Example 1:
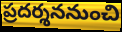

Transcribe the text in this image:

ప్రదర్శననుంచి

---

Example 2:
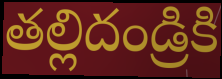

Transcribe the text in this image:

తల్లిదండ్రికి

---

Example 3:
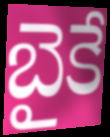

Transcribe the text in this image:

బైకే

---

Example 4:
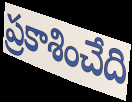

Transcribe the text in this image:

ప్రకాశించేది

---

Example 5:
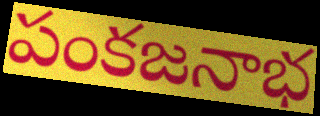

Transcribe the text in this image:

పంకజనాభ